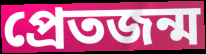
প্রেতজন্ম